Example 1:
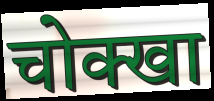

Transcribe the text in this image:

चोक्खा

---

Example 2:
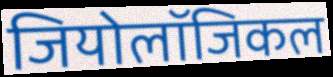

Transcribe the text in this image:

जियोलॉजिकल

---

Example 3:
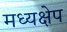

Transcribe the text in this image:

मध्यक्षेप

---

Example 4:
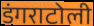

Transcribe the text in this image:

डंगराटोली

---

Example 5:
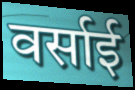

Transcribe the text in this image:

वर्साई